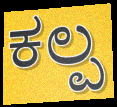
ಕಲ್ಪ